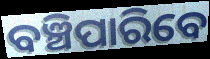
ବଞ୍ଚିପାରିବେ